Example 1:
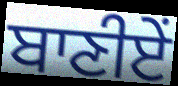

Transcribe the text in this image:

ਬਾਣੀਏਂ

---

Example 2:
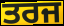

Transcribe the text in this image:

ਤਰਜ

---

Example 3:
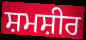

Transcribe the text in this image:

ਸ਼ਮਸ਼ੀਰ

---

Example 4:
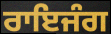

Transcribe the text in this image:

ਰਾਇਜੰਗ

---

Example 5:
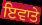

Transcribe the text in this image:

ਇਵਾਤੇ